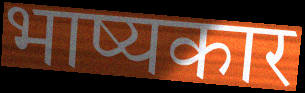
भाष्यकार